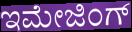
ಇಮೇಜಿಂಗ್